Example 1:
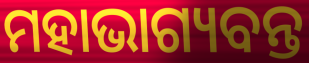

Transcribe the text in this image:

ମହାଭାଗ୍ୟବନ୍ତ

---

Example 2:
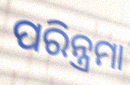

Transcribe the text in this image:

ପରିନ୍ତ୍ରମା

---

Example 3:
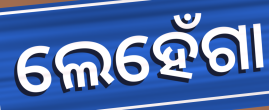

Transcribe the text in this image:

ଲେହେଁଗା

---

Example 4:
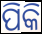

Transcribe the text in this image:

ପିକି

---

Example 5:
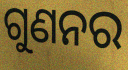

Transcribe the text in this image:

ଗୁଣନର